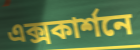
এক্সকার্শনে